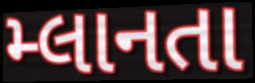
મ્લાનતા